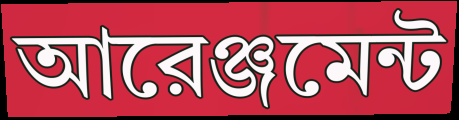
আরেঞ্জমেন্ট